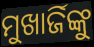
ମୁଖାର୍ଜିଙ୍କୁ